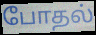
போதல்